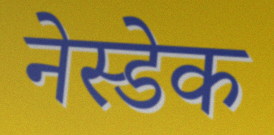
नेस्डेक